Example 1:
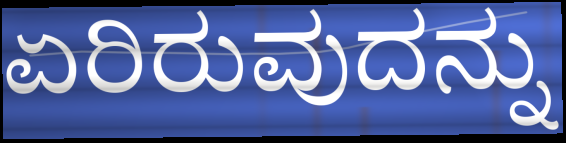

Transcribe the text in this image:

ಏರಿರುವುದನ್ನು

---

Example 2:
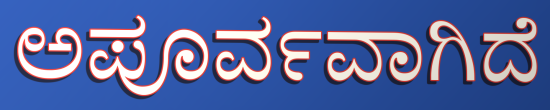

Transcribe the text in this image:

ಅಪೂರ್ವವಾಗಿದೆ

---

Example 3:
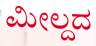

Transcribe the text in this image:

ಮೀಲ್ದದ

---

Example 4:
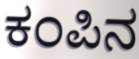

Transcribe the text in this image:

ಕಂಪಿನ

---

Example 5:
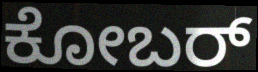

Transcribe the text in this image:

ಕೋಬರ್